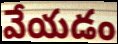
వేయడం